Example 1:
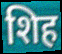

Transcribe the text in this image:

शिह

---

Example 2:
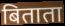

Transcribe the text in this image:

बिताता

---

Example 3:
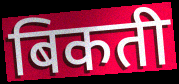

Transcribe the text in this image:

बिकती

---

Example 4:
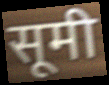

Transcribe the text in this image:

सूमी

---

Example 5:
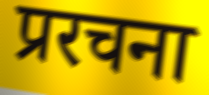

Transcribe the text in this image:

प्ररचना